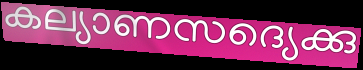
കല്യാണസദ്യെക്കു